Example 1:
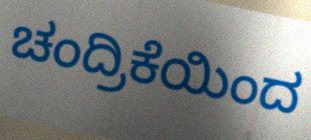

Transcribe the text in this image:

ಚಂದ್ರಿಕೆಯಿಂದ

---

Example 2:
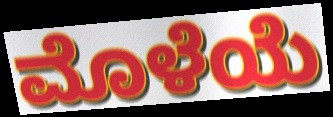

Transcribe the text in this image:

ಮೊಳೆಯೆ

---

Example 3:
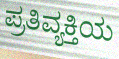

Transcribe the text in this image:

ಪ್ರತಿವ್ಯಕ್ತಿಯ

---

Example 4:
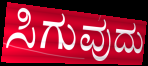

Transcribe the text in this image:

ಸಿಗುವುದು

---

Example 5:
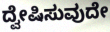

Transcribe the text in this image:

ದ್ವೇಷಿಸುವುದೇ